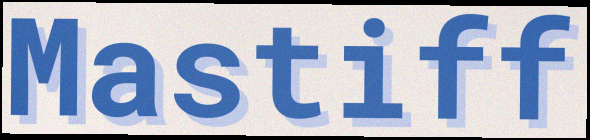
Mastiff